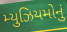
મ્યુઝિયમોનું